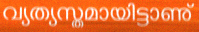
വ്യത്യസ്തമായിട്ടാണു്